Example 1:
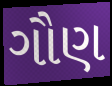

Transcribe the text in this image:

ગૌણ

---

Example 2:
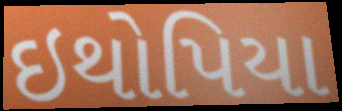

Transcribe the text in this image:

ઇથોપિયા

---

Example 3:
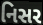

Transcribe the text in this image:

નિસર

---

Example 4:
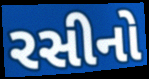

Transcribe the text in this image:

રસીનો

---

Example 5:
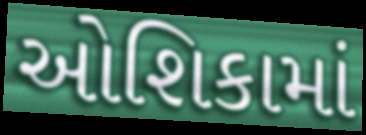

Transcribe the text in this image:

ઓશિકામાં